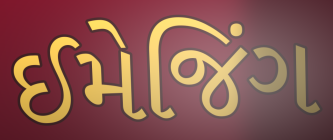
ઈમેજિંગ